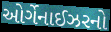
ઓર્ગેનાઈઝરનો